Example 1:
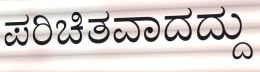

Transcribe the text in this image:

ಪರಿಚಿತವಾದದ್ದು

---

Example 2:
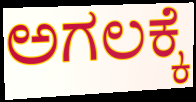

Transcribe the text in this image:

ಅಗಲಕ್ಕೆ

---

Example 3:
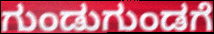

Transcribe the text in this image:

ಗುಂಡುಗುಂಡಗೆ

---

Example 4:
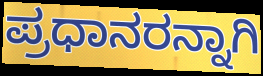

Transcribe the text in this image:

ಪ್ರಧಾನರನ್ನಾಗಿ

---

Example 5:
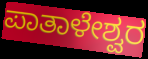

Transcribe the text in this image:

ಪಾತಾಳೇಶ್ವರ